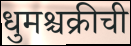
धुमश्चक्रीची